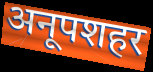
अनूपशहर